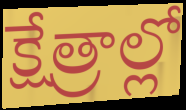
క్షేత్రాల్లో